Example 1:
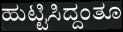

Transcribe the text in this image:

ಹುಟ್ಟಿಸಿದ್ದಂತೂ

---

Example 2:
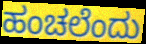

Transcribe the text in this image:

ಹಂಚಲೆಂದು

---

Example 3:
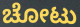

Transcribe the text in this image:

ಚೋಟು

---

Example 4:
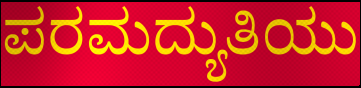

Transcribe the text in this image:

ಪರಮದ್ಯುತಿಯು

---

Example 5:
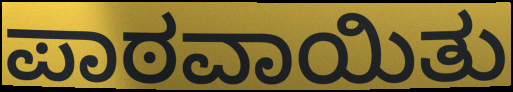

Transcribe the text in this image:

ಪಾಠವಾಯಿತು